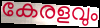
കേരളവും